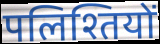
पलिश्तियों